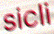
sicli